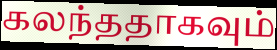
கலந்ததாகவும்